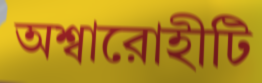
অশ্বারোহীটি